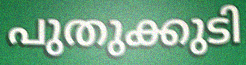
പുതുക്കുടി